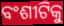
ବଂଶୀଟିକୁ